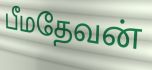
பீமதேவன்